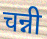
चन्नी